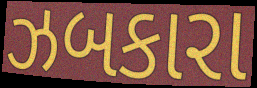
ઝબકારા